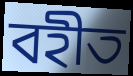
বহীত